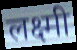
लक्ष्मी